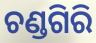
ଚଣ୍ଡଗିରି